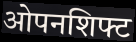
ओपनशिफ्ट